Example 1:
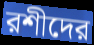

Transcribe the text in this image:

রশীদের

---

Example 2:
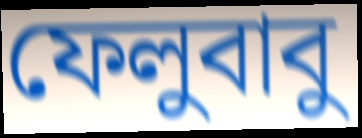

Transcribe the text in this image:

ফেলুবাবু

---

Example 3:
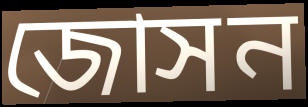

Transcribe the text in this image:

জোসন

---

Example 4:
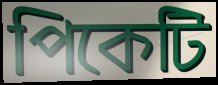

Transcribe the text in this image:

পিকেটি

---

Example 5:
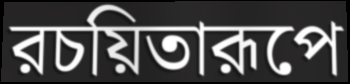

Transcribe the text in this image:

রচয়িতারূপে